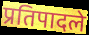
प्रतिपादले